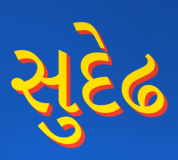
સુદેઢ